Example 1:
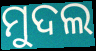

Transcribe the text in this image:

ମୁଦଲ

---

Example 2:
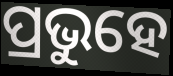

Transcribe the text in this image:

ପ୍ରଭୁହେ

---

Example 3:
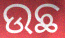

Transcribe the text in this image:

ଉଛ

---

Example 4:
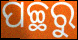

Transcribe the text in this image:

ପଚ୍ଛରୁ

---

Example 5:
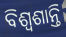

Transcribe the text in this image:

ବିଶ୍ୱଶାନ୍ତି